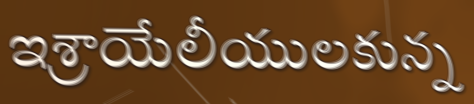
ఇశ్రాయేలీయులకున్న